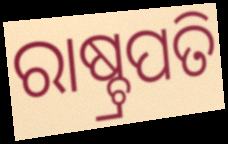
ରାଷ୍ଚ୍ରପତି